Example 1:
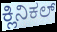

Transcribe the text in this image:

ಕ್ಲಿನಿಕಲ್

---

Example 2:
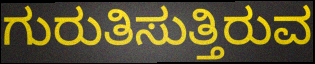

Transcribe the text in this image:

ಗುರುತಿಸುತ್ತಿರುವ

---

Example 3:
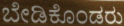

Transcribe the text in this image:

ಬೇಡಿಕೊಂಡರು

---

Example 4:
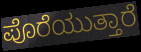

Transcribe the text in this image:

ಪೊರೆಯುತ್ತಾರೆ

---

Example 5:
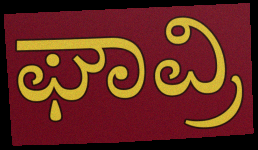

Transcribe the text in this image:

ಘಾವ್ರಿ